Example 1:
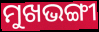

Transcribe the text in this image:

ମୁଖଭଙ୍ଗୀ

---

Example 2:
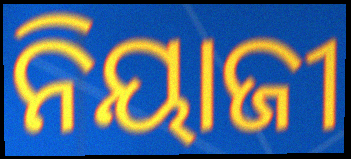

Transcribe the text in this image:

ନିୟାଜୀ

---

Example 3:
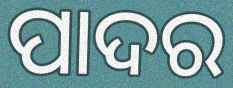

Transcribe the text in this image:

ପାଦର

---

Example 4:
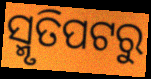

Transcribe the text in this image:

ସ୍ମୃତିପଟରୁ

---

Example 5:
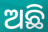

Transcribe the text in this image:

ଅଛି